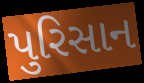
પુરિસાન